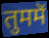
तुममें